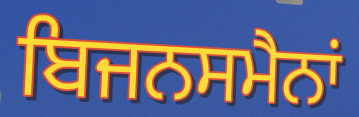
ਬਿਜਨਸਮੈਨਾਂ